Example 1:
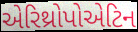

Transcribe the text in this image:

એરિથ્રોપોએટિન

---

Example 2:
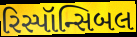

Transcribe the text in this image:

રિસ્પૉન્સિબલ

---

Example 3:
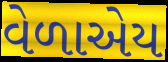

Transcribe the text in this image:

વેળાએય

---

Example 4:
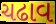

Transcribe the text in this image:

ચઢાવ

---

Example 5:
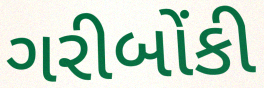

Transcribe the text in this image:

ગરીબોંકી